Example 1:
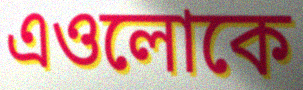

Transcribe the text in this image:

এওলোকে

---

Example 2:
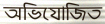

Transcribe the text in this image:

অভিযোজিত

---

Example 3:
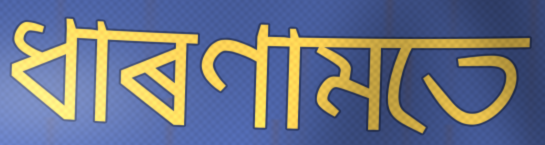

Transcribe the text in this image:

ধাৰণামতে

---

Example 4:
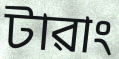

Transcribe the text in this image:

টাৱাং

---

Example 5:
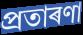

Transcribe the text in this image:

প্ৰতাৰণা